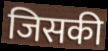
जिसकी